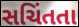
સચિંતતા